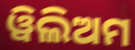
ୱିଲିଅମ